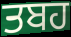
ਤਬਹ